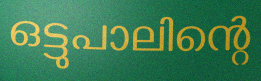
ഒട്ടുപാലിന്റെ